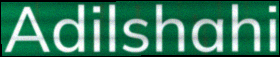
Adilshahi